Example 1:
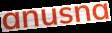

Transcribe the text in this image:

anusna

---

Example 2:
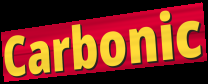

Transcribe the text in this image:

Carbonic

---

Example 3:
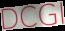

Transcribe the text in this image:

DCGI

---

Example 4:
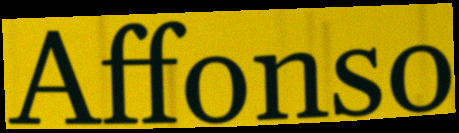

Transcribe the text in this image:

Affonso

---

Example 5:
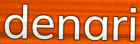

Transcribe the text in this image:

denari